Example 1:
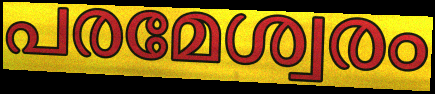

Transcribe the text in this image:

പരമേശ്വരം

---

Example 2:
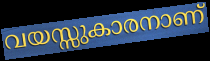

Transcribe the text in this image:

വയസ്സുകാരനാണ്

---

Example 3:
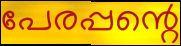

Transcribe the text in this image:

പേരപ്പന്റെ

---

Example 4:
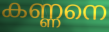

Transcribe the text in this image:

കണ്ണനെ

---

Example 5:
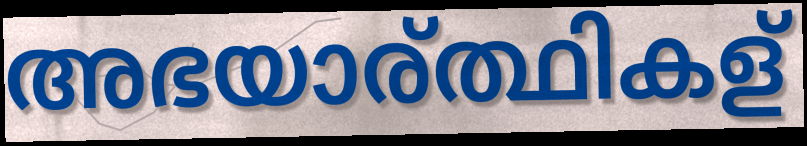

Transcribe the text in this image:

അഭയാര്ത്ഥികള്